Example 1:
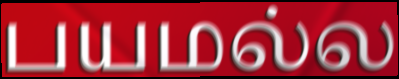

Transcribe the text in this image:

பயமல்ல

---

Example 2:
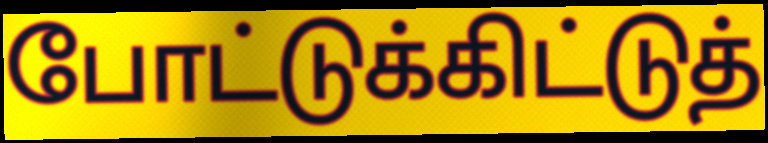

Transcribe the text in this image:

போட்டுக்கிட்டுத்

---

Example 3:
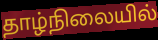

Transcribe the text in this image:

தாழ்நிலையில்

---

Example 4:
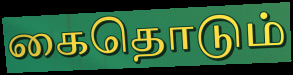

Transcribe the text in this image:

கைதொடும்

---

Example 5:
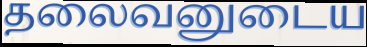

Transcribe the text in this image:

தலைவனுடைய